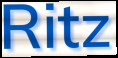
Ritz